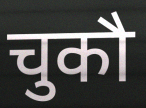
चुकौ